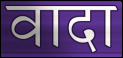
वादा